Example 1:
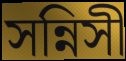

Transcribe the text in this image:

সন্নিসী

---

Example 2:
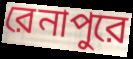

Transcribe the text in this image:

রেনাপুরে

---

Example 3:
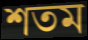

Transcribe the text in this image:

শতম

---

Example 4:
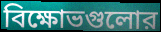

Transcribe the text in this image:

বিক্ষোভগুলোর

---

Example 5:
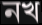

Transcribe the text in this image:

নখ